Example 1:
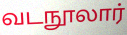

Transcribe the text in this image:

வடநூலார்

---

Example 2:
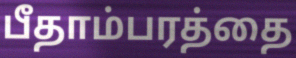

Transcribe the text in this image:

பீதாம்பரத்தை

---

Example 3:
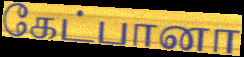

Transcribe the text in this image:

கேட்பானா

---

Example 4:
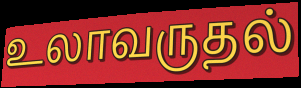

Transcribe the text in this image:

உலாவருதல்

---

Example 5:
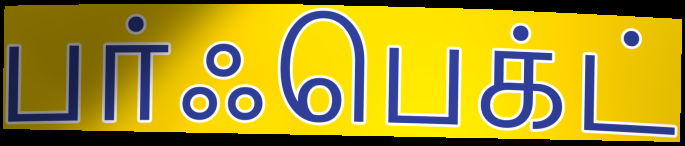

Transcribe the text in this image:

பர்ஃபெக்ட்